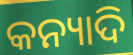
କନ୍ୟାଦି